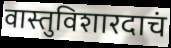
वास्तुविशारदाचं